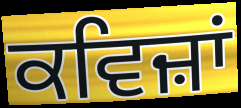
ਕਵਿਜ਼ਾਂ